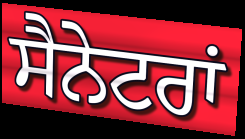
ਸੈਨੇਟਰਾਂ